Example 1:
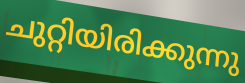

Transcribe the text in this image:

ചുറ്റിയിരിക്കുന്നു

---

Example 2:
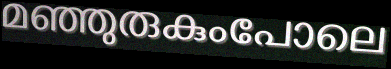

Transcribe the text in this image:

മഞ്ഞുരുകുംപോലെ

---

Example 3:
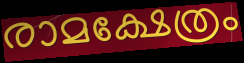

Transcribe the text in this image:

രാമക്ഷേത്രം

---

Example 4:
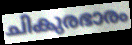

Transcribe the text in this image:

ചികുരഭാരം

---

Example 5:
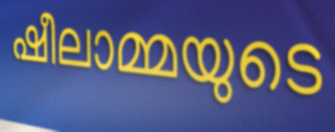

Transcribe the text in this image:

ഷീലാമ്മയുടെ